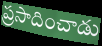
ప్రసాదించాడు